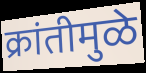
क्रांतीमुळे